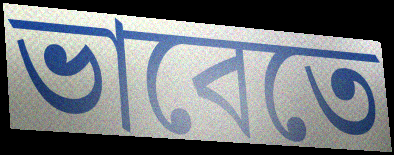
ভাবেতে